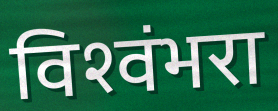
विश्वंभरा